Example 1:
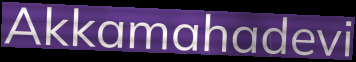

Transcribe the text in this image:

Akkamahadevi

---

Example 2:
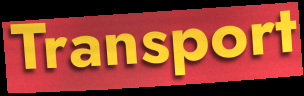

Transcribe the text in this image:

Transport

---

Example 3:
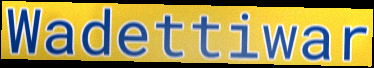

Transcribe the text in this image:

Wadettiwar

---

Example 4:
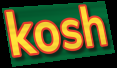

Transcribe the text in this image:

kosh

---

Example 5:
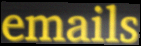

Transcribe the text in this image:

emails